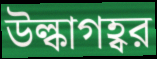
উল্কাগহ্বর